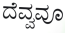
ದೆವ್ವವೂ